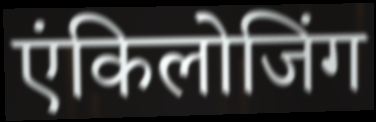
एंकिलोजिंग